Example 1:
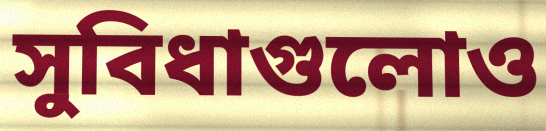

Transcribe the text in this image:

সুবিধাগুলোও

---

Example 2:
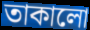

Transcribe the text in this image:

তাকালো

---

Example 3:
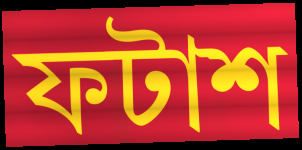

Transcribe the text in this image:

ফটাশ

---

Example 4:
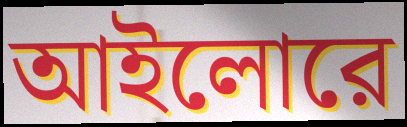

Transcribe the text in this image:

আইলোরে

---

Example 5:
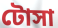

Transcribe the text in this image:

টোসা